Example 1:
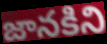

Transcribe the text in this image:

జానకిని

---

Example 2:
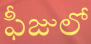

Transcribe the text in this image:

ఫీజులో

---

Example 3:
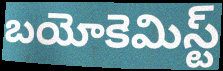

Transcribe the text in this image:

బయోకెమిస్ట్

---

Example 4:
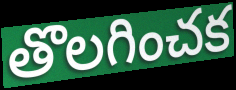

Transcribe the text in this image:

తొలగించక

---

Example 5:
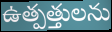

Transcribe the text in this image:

ఉత్పత్తులను